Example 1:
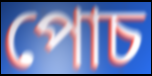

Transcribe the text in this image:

পোচ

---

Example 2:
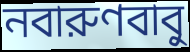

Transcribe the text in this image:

নবারুণবাবু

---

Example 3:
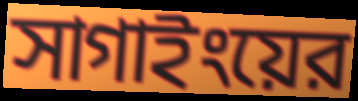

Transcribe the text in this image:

সাগাইংয়ের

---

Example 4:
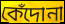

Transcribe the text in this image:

কেঁদোনা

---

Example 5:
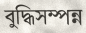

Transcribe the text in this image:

বুদ্ধিসম্পন্ন